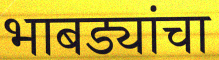
भाबड्यांचा